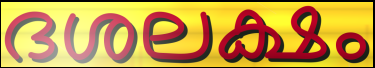
ദശലക്ഷം